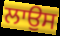
ਲਾਉਸ